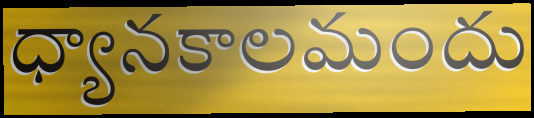
ధ్యానకాలమందు